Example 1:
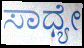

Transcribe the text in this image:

ಸಾಧ್ಯೇ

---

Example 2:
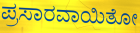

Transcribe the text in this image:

ಪ್ರಸಾರವಾಯಿತೋ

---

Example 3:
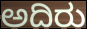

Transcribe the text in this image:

ಅದಿರು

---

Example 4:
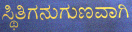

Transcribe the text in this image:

ಸ್ಥಿತಿಗನುಗುಣವಾಗಿ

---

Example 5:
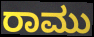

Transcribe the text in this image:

ರಾಮು